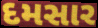
દમસાર